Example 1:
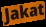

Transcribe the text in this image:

Jakat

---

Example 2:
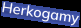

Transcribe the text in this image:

Herkogamy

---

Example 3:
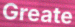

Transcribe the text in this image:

Greate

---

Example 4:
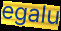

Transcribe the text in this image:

egalu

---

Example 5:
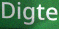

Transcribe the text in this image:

Digte